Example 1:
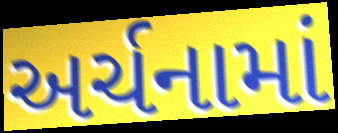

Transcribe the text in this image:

અર્ચનામાં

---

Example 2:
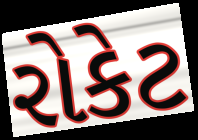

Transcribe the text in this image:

રોકેટ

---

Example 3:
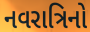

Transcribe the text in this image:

નવરાત્રિનો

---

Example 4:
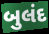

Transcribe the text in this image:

બુલંદ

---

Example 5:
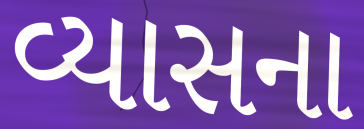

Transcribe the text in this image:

વ્યાસના